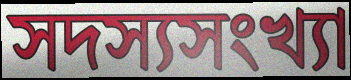
সদস্যসংখ্যা